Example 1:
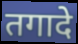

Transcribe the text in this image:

तगादे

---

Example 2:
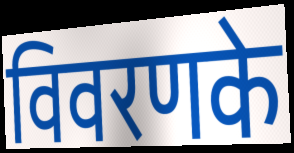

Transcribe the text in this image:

विवरणके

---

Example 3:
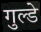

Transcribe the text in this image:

गुल्डे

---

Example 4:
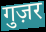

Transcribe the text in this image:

गुज़र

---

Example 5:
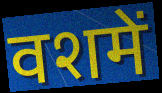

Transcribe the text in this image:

वशमें